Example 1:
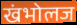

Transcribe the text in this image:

खंभोलज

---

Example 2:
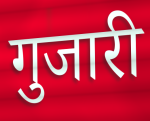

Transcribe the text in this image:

गुजारी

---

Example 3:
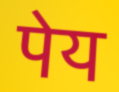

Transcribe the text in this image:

पेय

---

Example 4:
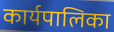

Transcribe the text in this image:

कार्यपालिका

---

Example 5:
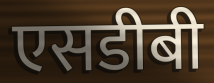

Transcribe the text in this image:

एसडीबी